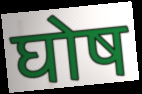
घोष